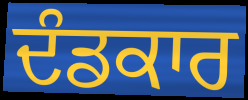
ਦੰਡਕਾਰ